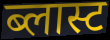
ब्लास्ट